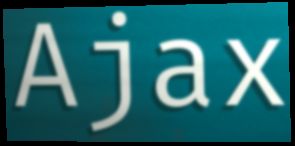
Ajax